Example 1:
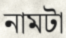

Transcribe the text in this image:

নামটা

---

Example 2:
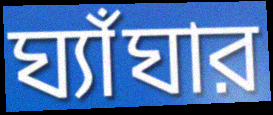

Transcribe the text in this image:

ঘ্যাঁঘার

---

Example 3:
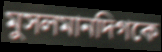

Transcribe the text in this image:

মুসলমানদিগকে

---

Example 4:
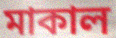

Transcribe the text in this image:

মাকাল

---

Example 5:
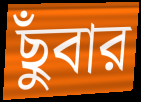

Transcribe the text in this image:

ছুঁবার